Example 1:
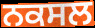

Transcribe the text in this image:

ਨਕਸਲ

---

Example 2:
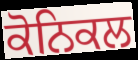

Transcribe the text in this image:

ਕੋਨਿਕਲ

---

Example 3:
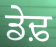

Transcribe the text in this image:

ਡੇਢ਼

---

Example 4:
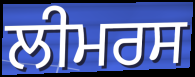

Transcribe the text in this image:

ਲੀਮਰਸ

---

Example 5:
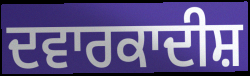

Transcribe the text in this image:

ਦਵਾਰਕਾਦੀਸ਼